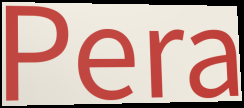
Pera